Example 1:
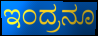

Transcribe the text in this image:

ಇಂದ್ರನೂ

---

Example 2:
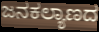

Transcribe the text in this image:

ಜನಕಲ್ಯಾಣದ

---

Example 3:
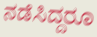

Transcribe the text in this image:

ನಡೆಸಿದ್ದರೂ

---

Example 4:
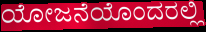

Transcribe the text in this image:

ಯೋಜನೆಯೊಂದರಲ್ಲಿ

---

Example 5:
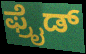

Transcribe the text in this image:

ಫ್ರೈಡ್